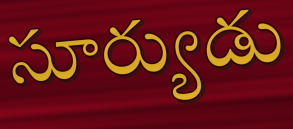
సూర్యుడు